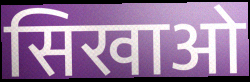
सिखाओ